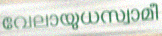
വേലായുധസ്വാമീ